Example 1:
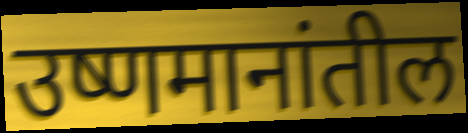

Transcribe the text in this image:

उष्णमानांतील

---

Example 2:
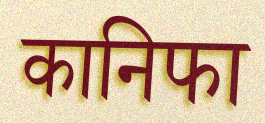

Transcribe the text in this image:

कानिफा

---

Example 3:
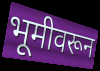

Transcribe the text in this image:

भूमीवरून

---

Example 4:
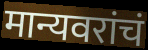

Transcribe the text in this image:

मान्यवरांचं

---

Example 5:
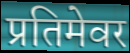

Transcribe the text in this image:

प्रतिमेवर